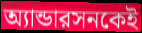
অ্যান্ডারসনকেই